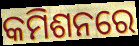
କମିଶନରେ